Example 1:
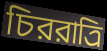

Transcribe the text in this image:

চিররাত্রি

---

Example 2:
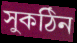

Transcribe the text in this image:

সুকঠিন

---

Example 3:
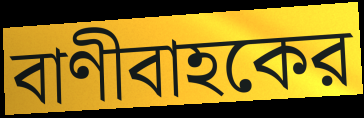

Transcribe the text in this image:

বাণীবাহকের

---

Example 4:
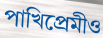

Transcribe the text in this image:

পাখিপ্রেমীও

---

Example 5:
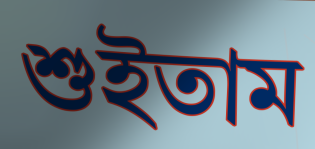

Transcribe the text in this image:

শুইতাম